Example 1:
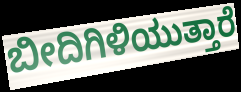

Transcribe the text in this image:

ಬೀದಿಗಿಳಿಯುತ್ತಾರೆ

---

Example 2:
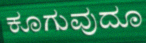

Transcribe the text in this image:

ಕೂಗುವುದೂ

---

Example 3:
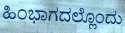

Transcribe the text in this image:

ಹಿಂಭಾಗದಲ್ಲೊಂದು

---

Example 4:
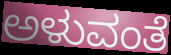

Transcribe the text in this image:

ಅಳುವಂತೆ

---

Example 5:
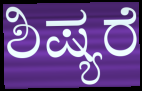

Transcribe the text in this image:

ಶಿಷ್ಯರೆ